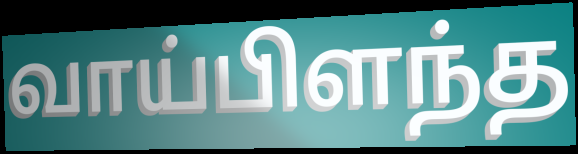
வாய்பிளந்த